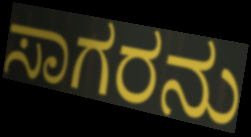
ಸಾಗರನು